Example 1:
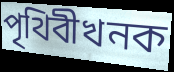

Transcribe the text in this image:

পৃথিবীখনক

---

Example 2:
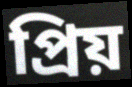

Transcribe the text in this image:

প্ৰিয়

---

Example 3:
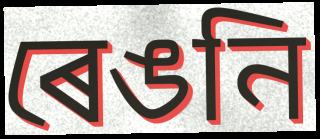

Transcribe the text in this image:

ৰেঙনি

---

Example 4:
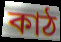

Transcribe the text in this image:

কাঠ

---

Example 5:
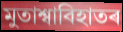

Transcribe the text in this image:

মুতাশ্বাবিহাতৰ